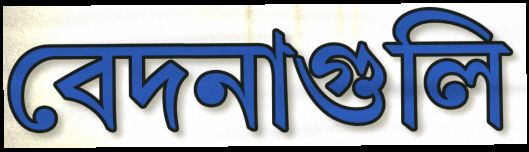
বেদনাগুলি